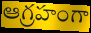
ఆగ్రహంగా